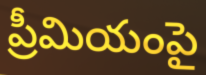
ప్రీమియంపై